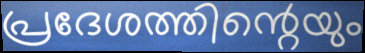
പ്രദേശത്തിന്റെയും